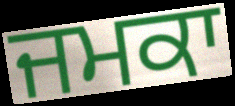
ਜਮਕਾ